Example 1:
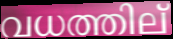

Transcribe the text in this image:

വധത്തില്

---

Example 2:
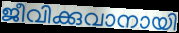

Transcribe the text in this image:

ജീവിക്കുവാനായി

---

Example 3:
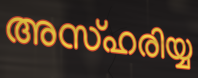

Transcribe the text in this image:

അസ്ഹരിയ്യ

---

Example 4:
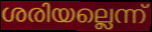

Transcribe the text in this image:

ശരിയല്ലെന്ന്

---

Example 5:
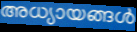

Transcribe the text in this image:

അധ്യായങ്ങൾ